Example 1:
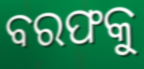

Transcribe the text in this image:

ବରଫକୁ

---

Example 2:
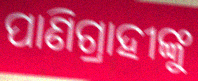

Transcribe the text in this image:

ପାଣିଗ୍ରାହୀଙ୍କୁ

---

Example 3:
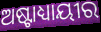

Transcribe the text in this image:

ଅଷ୍ଟାଧ୍ଯାୟୀର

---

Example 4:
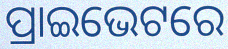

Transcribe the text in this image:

ପ୍ରାଇଭେଟରେ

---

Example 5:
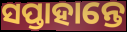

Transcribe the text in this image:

ସପ୍ତାହାନ୍ତେ